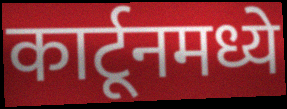
कार्टूनमध्ये